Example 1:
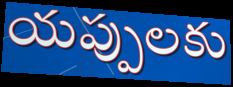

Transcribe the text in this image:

యప్పులకు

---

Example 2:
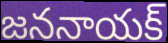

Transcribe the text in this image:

జననాయక్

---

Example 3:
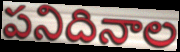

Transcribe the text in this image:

పనిదినాల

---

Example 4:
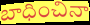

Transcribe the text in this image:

బాధించినా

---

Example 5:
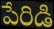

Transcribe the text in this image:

పేరిడి